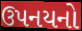
ઉપનયનો